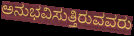
ಅನುಭವಿಸುತ್ತಿರುವವರು